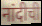
नांदीची